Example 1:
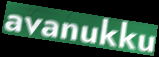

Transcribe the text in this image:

avanukku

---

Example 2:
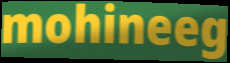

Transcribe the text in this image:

mohineeg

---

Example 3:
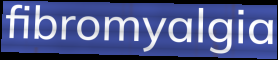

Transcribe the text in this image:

fibromyalgia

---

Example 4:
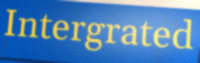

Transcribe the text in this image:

Intergrated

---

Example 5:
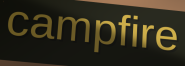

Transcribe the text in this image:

campfire